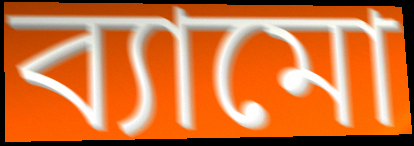
ব্যামো